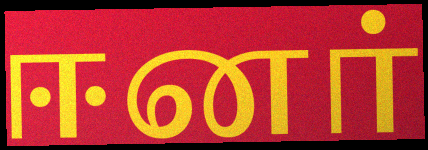
ஈனர்